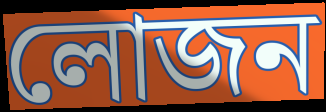
লোজন